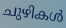
ചുഴികൾ